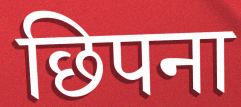
छिपना